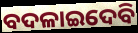
ବଦଳାଇଦେବି